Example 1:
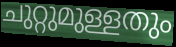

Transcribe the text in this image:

ചുറ്റുമുള്ളതും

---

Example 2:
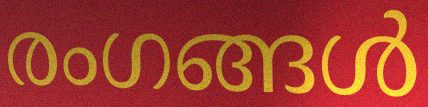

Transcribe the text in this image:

രംഗങ്ങൾ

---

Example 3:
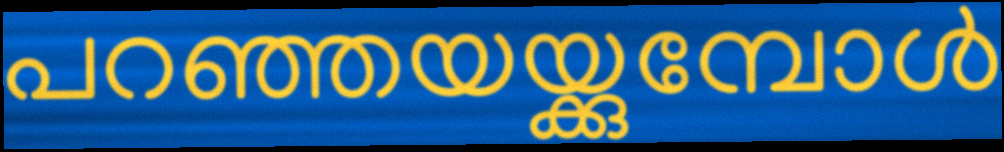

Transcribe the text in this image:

പറഞ്ഞയയ്ക്കുമ്പോൾ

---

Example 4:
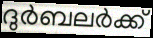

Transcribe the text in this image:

ദുർബലർക്ക്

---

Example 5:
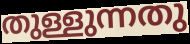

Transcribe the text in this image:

തുള്ളുന്നതു